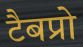
टैबप्रो